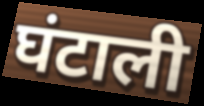
घंटाली